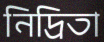
নিদ্রিতা